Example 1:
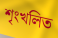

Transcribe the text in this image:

শৃংখলিত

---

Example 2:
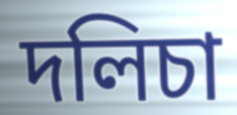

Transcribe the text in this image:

দলিচা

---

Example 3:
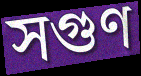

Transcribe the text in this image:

সগুণ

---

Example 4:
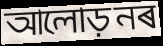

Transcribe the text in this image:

আলোড়নৰ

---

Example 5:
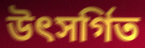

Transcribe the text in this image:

উৎসৰ্গিত